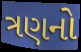
ત્રણનો